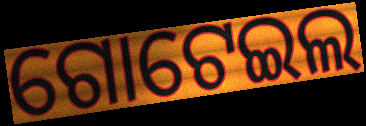
ଗୋଟେଇଲ